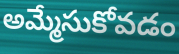
అమ్మేసుకోవడం